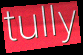
tully